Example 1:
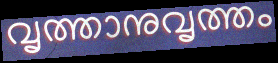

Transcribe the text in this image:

വൃത്താനുവൃത്തം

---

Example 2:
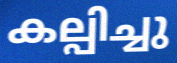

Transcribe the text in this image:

കല്പിച്ചു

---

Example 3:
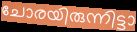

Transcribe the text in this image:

ചോരയിരുന്നിട്ടാ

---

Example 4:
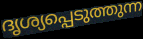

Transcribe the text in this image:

ദൃശ്യപ്പെടുത്തുന്ന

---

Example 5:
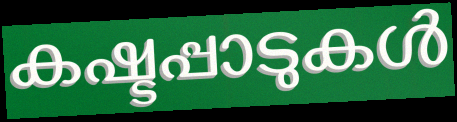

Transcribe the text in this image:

കഷ്ടപ്പാടുകൾ